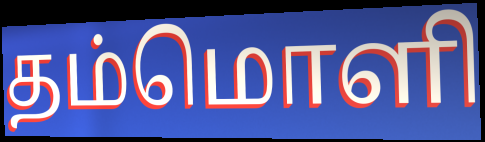
தம்மொளி